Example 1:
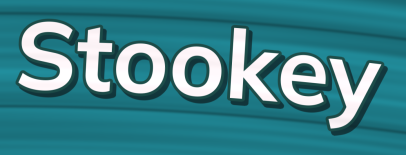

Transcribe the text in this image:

Stookey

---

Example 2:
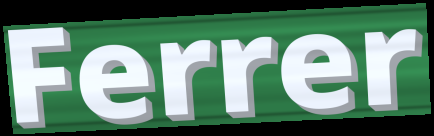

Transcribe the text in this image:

Ferrer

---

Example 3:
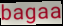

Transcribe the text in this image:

bagaa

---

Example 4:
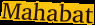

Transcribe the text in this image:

Mahabat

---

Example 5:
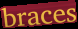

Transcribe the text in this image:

braces